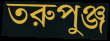
তরুপুঞ্জ